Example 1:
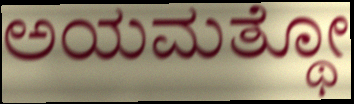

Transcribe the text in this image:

ಅಯಮತ್ಥೋ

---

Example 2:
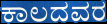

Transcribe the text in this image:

ಕಾಲದವರ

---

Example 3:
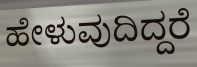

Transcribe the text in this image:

ಹೇಳುವುದಿದ್ದರೆ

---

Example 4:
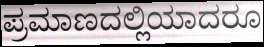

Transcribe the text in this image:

ಪ್ರಮಾಣದಲ್ಲಿಯಾದರೂ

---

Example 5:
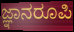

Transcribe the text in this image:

ಜ್ಞಾನರೂಪಿ